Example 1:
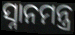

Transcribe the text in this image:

ସ୍ନାନମନ୍ତ୍ର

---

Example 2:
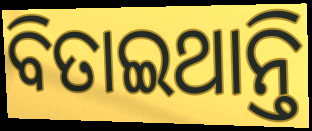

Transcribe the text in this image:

ବିତାଇଥାନ୍ତି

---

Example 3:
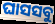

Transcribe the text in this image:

ଘାସସବୁ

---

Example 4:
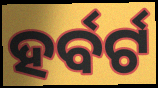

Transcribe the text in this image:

ହର୍ବର୍ଟ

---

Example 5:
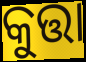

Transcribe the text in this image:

କୁତ୍ତା